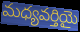
మధ్యవర్తియై